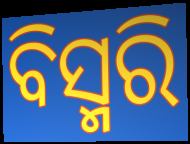
ବିସ୍ମରି